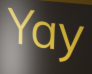
Yay